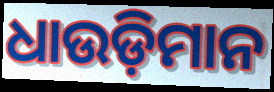
ଧାଉଡ଼ିମାନ